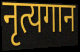
नृत्यगान